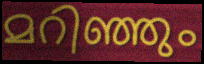
മറിഞ്ഞും